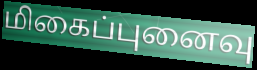
மிகைப்புனைவு